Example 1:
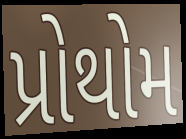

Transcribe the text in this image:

પ્રોથોમ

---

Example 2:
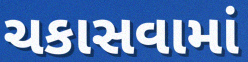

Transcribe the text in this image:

ચકાસવામાં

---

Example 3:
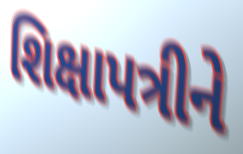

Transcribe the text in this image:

શિક્ષાપત્રીને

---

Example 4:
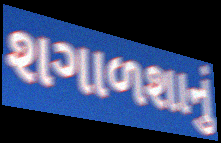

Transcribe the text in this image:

શગાળશાનું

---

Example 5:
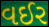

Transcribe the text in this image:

વઈર